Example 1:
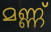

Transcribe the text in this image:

മണ്ണ്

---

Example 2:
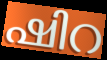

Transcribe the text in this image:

ഷിറ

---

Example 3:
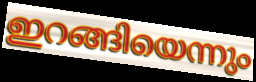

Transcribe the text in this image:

ഇറങ്ങിയെന്നും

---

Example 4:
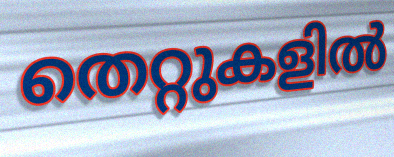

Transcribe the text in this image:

തെറ്റുകളിൽ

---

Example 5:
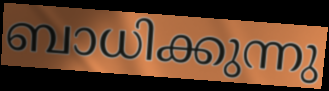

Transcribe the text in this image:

ബാധിക്കുന്നു